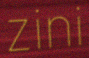
zini